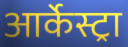
आर्केस्ट्रा